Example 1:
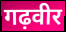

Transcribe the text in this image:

गढ़वीर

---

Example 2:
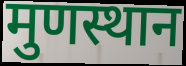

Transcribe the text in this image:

मुणस्थान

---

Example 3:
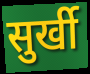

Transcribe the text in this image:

सुर्खी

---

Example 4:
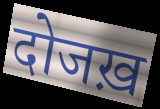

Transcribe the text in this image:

दोजख़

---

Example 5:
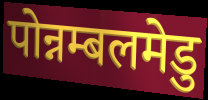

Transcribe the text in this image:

पोन्नम्बलमेडु